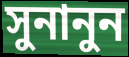
সুনানুন